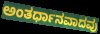
ಅಂತರ್ಧಾನವಾದವು